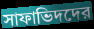
সাফাভিদদের